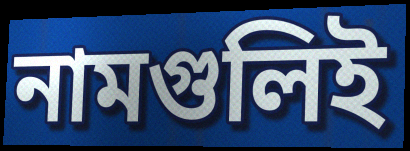
নামগুলিই